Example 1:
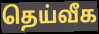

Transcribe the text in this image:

தெய்வீக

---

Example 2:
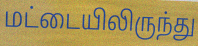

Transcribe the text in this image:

மட்டையிலிருந்து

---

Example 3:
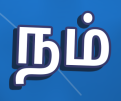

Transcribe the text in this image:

நம்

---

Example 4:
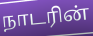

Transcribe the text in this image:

நாடரின்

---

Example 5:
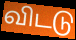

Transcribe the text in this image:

விடடு